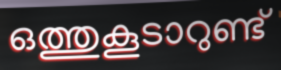
ഒത്തുകൂടാറുണ്ട്